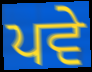
ਪਵੇ